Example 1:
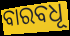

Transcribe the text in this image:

ବାରବଧୂ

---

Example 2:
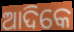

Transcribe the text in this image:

ଆଦିକେ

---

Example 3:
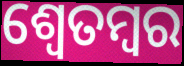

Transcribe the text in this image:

ଶ୍ଵେତମ୍ବର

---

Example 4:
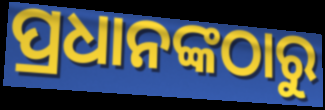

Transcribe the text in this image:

ପ୍ରଧାନଙ୍କଠାରୁ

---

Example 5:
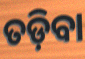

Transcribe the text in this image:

ତଡ଼ିବା